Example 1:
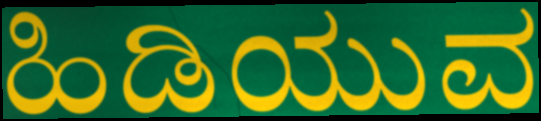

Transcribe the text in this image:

ಹಿಡಿಯುವ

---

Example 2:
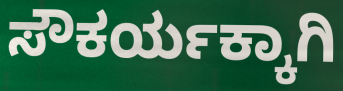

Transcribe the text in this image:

ಸೌಕರ್ಯಕ್ಕಾಗಿ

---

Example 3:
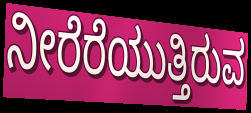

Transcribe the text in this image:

ನೀರೆರೆಯುತ್ತಿರುವ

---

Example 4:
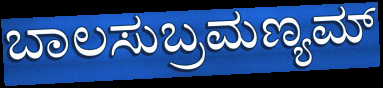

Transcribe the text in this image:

ಬಾಲಸುಬ್ರಮಣ್ಯಮ್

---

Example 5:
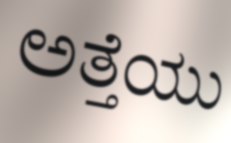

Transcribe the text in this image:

ಅತ್ತೆಯು